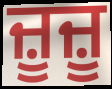
ਜ਼ੂਜ਼ੂ